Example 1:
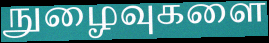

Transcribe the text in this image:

நுழைவுகளை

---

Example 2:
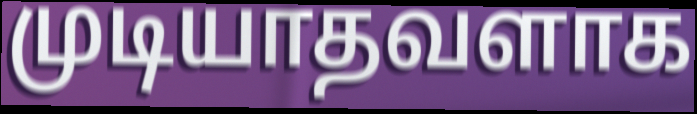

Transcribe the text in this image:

முடியாதவளாக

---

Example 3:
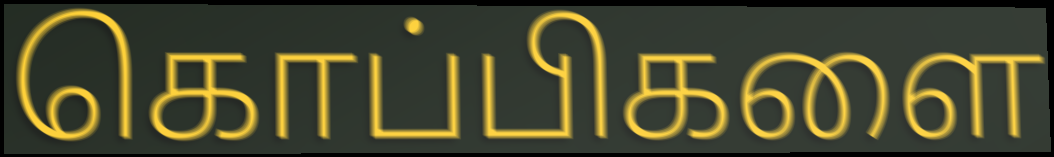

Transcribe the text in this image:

கொப்பிகளை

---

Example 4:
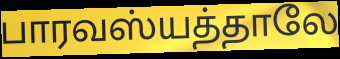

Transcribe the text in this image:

பாரவஸ்யத்தாலே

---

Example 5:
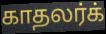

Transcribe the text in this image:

காதலர்க்